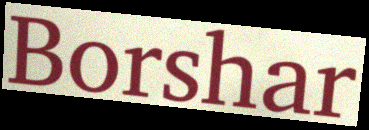
Borshar